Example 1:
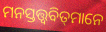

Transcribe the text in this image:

ମନସ୍ତତ୍ତ୍ୱବିତ୍‌ମାନେ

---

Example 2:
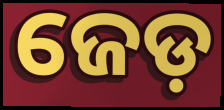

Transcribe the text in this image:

ଜେଡ଼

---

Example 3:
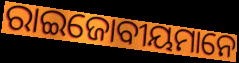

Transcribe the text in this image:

ରାଇଜୋବୀୟମାନେ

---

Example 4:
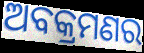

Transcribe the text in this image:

ଅବକ୍ରମଣର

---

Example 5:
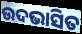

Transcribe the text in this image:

ଉଦଭାସିତ